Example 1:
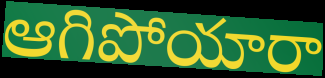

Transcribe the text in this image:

ఆగిపోయారా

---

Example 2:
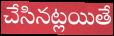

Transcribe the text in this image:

చేసినట్లయితే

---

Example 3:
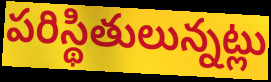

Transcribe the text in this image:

పరిస్థితులున్నట్లు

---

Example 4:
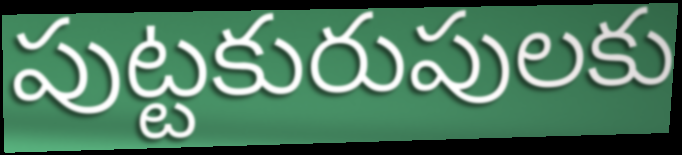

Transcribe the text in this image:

పుట్టకురుపులకు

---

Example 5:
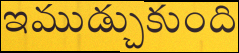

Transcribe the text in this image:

ఇముడ్చుకుంది